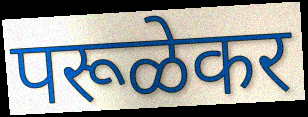
परूळेकर